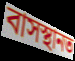
বাসস্থানত